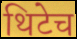
थिटेच